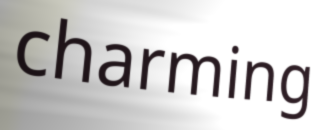
charming